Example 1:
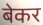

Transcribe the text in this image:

बेकर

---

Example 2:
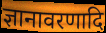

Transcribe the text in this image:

ज्ञानावरणादि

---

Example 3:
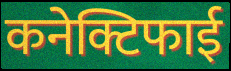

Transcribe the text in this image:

कनेक्टिफाई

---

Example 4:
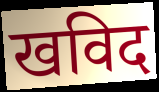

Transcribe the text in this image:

खविद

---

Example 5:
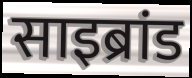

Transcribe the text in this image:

साइब्रांड